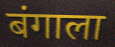
बंगाला